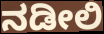
ನಡೀಲಿ